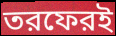
তরফেরই